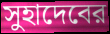
সুহাদেবের